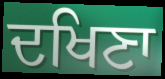
ਦਖਿਣਾ